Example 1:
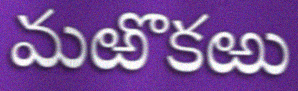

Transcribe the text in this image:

మఱొకఱు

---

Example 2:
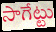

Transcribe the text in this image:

సాగేట్టు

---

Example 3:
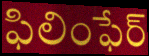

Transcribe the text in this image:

ఫిలింఫేర్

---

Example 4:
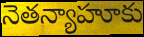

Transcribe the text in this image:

నెతన్యాహూకు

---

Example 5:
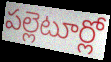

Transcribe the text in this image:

పల్లెటూర్లో